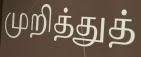
முறித்துத்